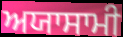
ਅਯਾਸਾਮੀ